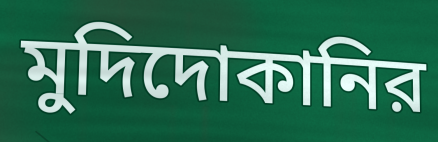
মুদিদোকানির